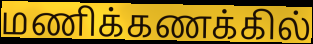
மணிக்கணக்கில்